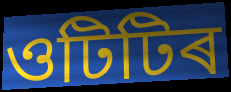
ওটিটিৰ